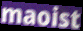
maoist